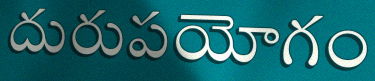
దురుపయోగం